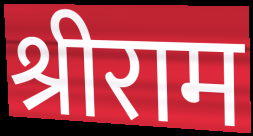
श्रीराम